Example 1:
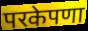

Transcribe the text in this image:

परकेपणा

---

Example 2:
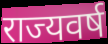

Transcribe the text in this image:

राज्यवर्ष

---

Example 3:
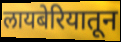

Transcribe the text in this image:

लायबेरियातून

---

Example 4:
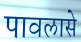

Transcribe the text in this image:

पावलासे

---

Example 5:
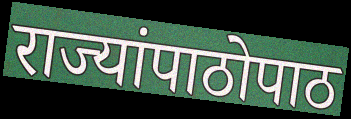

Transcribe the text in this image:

राज्यांपाठोपाठ